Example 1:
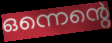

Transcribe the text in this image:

ഒന്നെന്റെ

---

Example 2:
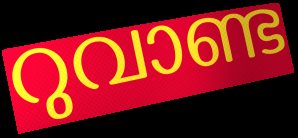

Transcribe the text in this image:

റുവാണ്ട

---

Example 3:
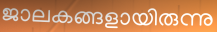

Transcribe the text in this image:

ജാലകങ്ങളായിരുന്നു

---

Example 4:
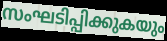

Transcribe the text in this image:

സംഘടിപ്പിക്കുകയും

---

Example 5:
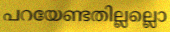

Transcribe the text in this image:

പറയേണ്ടതില്ലല്ലൊ